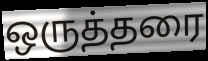
ஒருத்தரை